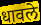
धावले